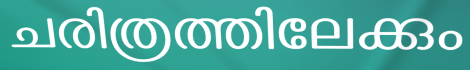
ചരിത്രത്തിലേക്കും